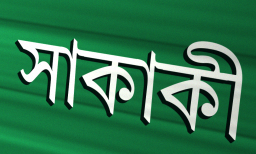
সাকাকী